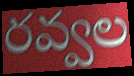
రవ్వల